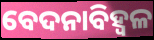
ବେଦନାବିହ୍ୱଳ